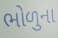
ભોળુના